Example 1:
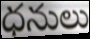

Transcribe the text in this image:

ధనులు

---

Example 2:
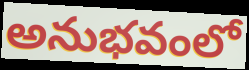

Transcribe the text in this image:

అనుభవంలో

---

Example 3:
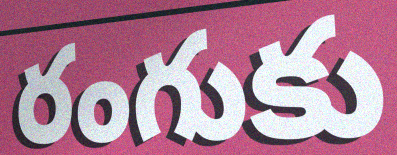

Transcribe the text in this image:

రంగుకు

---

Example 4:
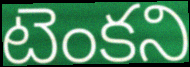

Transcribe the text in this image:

టెంకని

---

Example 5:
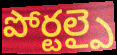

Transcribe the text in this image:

పోర్టల్పై